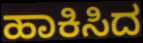
ಹಾಕಿಸಿದ